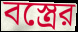
বস্ত্রের